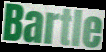
Bartle